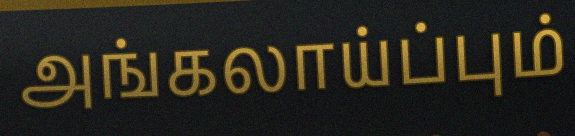
அங்கலாய்ப்பும்